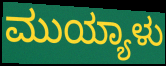
ಮುಯ್ಯಾಳು